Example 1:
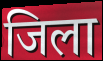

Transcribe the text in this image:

जिला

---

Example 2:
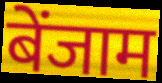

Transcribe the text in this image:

बेंजाम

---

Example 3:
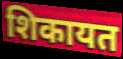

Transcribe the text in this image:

शिकायत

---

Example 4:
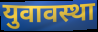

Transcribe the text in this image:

युवावस्था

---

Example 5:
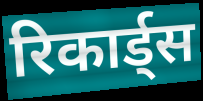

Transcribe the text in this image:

रिकार्ड्स